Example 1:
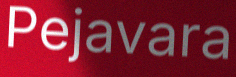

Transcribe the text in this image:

Pejavara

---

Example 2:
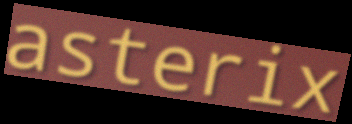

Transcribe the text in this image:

asterix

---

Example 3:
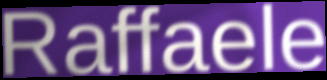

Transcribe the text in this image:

Raffaele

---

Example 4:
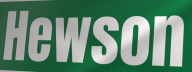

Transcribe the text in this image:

Hewson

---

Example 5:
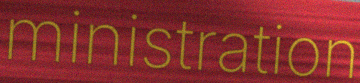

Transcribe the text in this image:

ministration